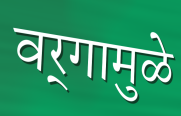
वर्गामुळे